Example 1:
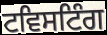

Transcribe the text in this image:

ਟਵਿਸਟਿੰਗ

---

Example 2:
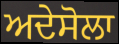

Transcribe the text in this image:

ਅਦੇਸੋਲਾ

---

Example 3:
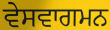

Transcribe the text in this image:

ਵੇਸਵਾਗਮਨ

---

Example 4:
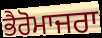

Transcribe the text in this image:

ਭੈਰੋਮਾਜਰਾ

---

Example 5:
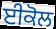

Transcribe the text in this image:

ਈਕੋਲ